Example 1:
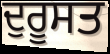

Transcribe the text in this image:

ਦੁਰੂਸਤ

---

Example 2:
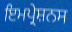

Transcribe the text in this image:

ਇਮਪ੍ਰੇਸ਼ਨਸ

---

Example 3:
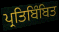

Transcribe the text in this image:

ਪ੍ਰਤਿਬਿੰਬਿਤ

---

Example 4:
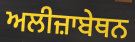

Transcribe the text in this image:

ਅਲੀਜ਼ਾਬੇਥਨ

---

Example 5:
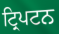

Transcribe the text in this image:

ਟ੍ਰਿਪਟਨ